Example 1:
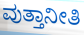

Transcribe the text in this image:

ವುತ್ತಾನೀತಿ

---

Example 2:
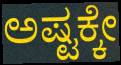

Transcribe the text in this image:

ಅಷ್ಟಕ್ಕೇ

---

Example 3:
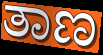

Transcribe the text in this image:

ತಾಣ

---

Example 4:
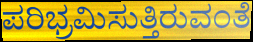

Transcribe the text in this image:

ಪರಿಭ್ರಮಿಸುತ್ತಿರುವಂತೆ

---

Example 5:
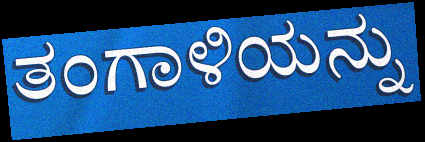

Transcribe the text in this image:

ತಂಗಾಳಿಯನ್ನು